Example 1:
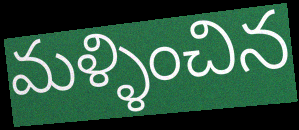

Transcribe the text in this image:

మళ్ళించిన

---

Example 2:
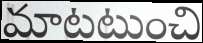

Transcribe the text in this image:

మాటటుంచి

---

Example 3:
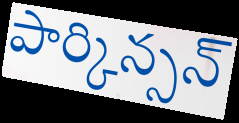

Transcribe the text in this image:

పార్కిన్సన్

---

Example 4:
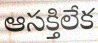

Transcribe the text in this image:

ఆసక్తిలేక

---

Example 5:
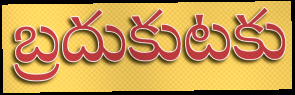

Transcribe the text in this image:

బ్రదుకుటకు